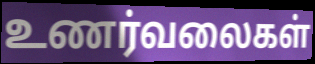
உணர்வலைகள்